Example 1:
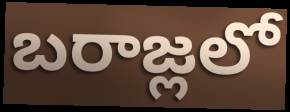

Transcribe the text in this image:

బరాజ్లలో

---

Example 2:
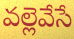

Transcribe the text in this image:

వల్లెవేసే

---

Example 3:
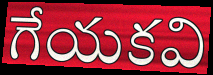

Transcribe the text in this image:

గేయకవి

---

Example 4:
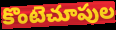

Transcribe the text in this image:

కొంటెచూపుల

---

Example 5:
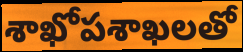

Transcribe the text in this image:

శాఖోపశాఖలతో